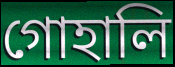
গোহালি